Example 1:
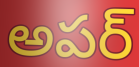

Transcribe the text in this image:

అపర్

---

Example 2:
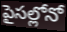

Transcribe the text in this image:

పైసల్లోనో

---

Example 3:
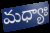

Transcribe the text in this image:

మధ్యాః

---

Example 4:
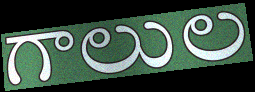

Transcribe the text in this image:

గాలుల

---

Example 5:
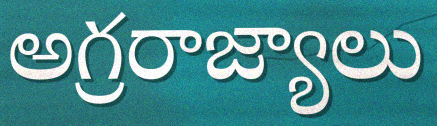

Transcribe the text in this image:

అగ్రరాజ్యాలు